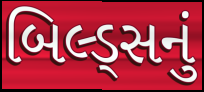
બિલ્ડ્સનું